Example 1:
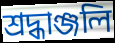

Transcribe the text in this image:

শ্রদ্ধাঞ্জলি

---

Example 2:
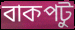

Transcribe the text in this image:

বাকপটু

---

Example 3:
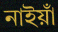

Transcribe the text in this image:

নাইয়াঁ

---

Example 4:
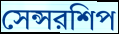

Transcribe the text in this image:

সেন্সরশিপ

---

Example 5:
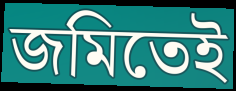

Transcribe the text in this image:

জমিতেই